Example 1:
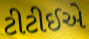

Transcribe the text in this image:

ટીટીઈએ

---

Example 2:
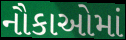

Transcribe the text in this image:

નૌકાઓમાં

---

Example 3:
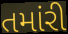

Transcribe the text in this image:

તમાંરી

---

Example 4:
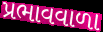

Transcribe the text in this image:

પ્રભાવવાળા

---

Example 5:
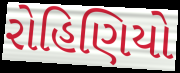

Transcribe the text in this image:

રોહિણિયો